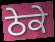
ਠੇਕੇ